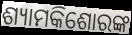
ଶ୍ୟାମକିଶୋରଙ୍କ